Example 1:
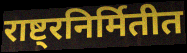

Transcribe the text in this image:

राष्ट्रनिर्मितीत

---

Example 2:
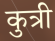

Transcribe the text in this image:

कुत्री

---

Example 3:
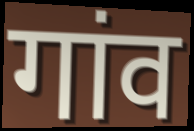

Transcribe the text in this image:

गांव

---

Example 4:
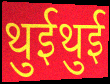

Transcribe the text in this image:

थुईथुई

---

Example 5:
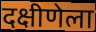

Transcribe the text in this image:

दक्षीणेला